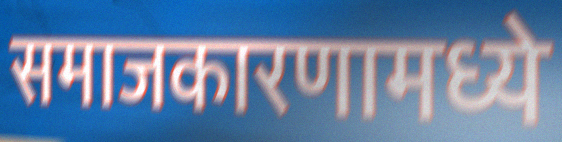
समाजकारणामध्ये